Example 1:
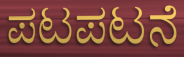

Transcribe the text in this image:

ಪಟಪಟನೆ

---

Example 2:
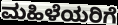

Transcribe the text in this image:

ಮಹಿಳೆಯರಿಗೆ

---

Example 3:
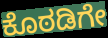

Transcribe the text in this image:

ಕೊಠಡಿಗೇ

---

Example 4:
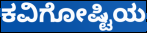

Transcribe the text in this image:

ಕವಿಗೋಷ್ಟಿಯ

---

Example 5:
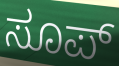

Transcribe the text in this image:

ಸೂಪ್